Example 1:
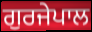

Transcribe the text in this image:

ਗੁਰਜੇਪਾਲ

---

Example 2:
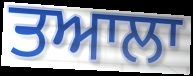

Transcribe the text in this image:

ਤਆਲਾ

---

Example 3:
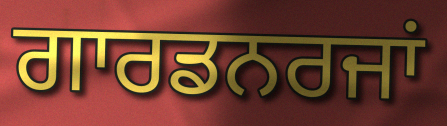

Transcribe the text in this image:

ਗਾਰਡਨਰਜਾਂ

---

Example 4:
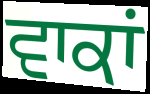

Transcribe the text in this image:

ਵਾਕਾਂ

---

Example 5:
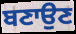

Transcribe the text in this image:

ਬਣਾਉਣ